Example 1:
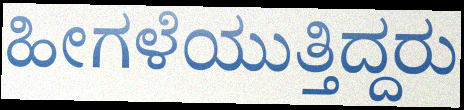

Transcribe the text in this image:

ಹೀಗಳೆಯುತ್ತಿದ್ದರು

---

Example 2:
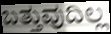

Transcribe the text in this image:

ಬತ್ತುವುದಿಲ್ಲ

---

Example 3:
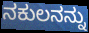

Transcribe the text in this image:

ನಕುಲನನ್ನು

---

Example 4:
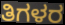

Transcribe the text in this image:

ತಿಗಳರ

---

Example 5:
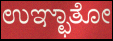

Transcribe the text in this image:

ಉಞ್ಛಾತೋ